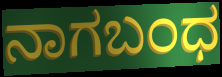
ನಾಗಬಂಧ